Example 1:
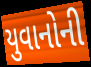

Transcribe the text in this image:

યુવાનોની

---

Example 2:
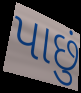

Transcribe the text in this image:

પાછું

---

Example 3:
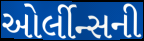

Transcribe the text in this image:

ઓર્લીન્સની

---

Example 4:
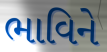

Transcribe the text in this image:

ભાવિને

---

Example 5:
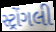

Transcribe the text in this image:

સ્ટ્રોંગલી